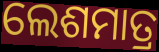
ଲେଶମାତ୍ର